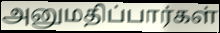
அனுமதிப்பார்கள்